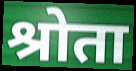
श्रोता